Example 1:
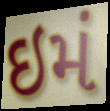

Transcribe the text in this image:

ઇમં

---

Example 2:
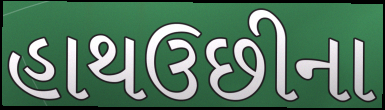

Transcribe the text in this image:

હાથઉછીના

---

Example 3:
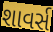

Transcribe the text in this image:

શાવર્સ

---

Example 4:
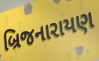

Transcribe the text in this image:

બ્રિજનારાયણ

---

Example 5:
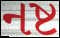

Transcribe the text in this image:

નષ્ટ